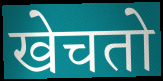
खेचतो